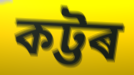
কট্টৰ